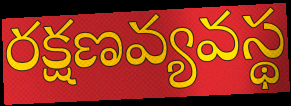
రక్షణవ్యవస్థ